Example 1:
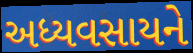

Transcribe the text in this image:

અધ્યવસાયને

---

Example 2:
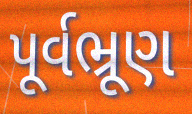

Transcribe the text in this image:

પૂર્વભ્રૂણ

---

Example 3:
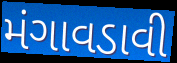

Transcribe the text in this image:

મંગાવડાવી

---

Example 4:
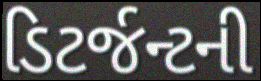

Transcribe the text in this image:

ડિટર્જન્ટની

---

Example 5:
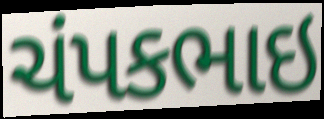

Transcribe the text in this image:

ચંપકભાઇ